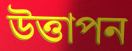
উত্তাপন